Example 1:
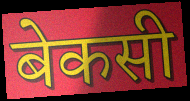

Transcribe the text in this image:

बेकसी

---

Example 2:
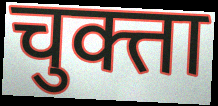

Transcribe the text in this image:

चुक्ता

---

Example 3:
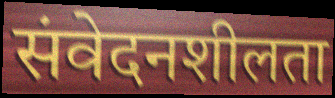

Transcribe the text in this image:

संवेदनशीलता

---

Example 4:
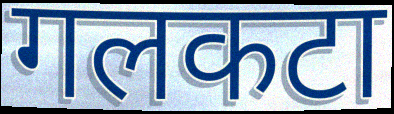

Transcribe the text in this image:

गलकटा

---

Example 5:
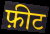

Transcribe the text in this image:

फ़ीट